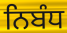
ਨਿਬੰਧ